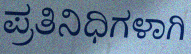
ಪ್ರತಿನಿಧಿಗಳಾಗಿ